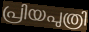
പ്രിയപുത്രി